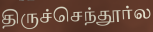
திருச்செந்தூர்ல